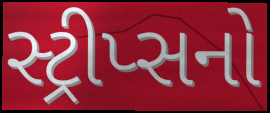
સ્ટ્રીપ્સનો